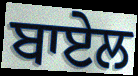
ਬਾਏਲ